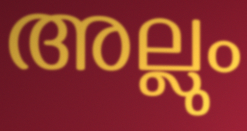
അല്ലും